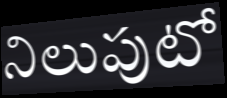
నిలుపుటో